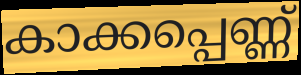
കാക്കപ്പെണ്ണ്